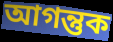
আগন্তুক